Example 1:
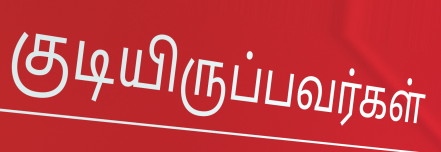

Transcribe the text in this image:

குடியிருப்பவர்கள்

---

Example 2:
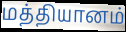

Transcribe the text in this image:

மத்தியானம்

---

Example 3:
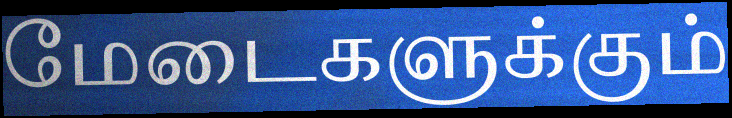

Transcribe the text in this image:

மேடைகளுக்கும்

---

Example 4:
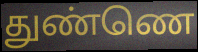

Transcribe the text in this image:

துண்ணெ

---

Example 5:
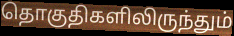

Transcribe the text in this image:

தொகுதிகளிலிருந்தும்